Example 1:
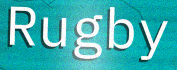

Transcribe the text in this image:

Rugby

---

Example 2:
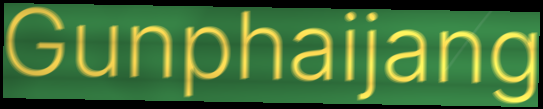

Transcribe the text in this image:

Gunphaijang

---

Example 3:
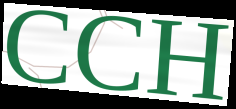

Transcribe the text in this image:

CCH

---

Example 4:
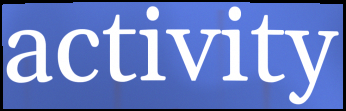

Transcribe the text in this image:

activity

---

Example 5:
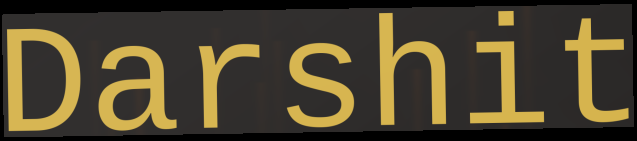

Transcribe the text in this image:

Darshit